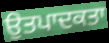
ਉਤਪਾਦਕਤਾ